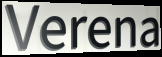
Verena